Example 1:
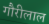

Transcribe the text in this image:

गौरीलाल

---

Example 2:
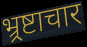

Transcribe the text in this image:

भ्र्रष्टाचार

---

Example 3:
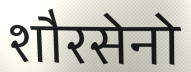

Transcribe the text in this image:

शौरसेनो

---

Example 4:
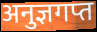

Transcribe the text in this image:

अनुज्ञगप्त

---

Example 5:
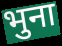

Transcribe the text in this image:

भुना